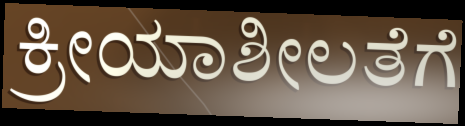
ಕ್ರೀಯಾಶೀಲತೆಗೆ